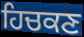
ਹਿਚਕਣ